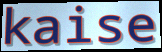
kaise